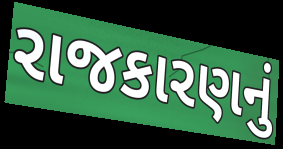
રાજકારણનું